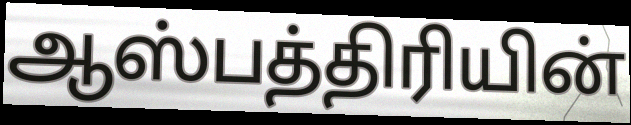
ஆஸ்பத்திரியின்